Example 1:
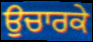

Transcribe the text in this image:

ਉਚਾਰਕੇ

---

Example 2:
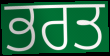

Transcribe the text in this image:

ਭਰਤ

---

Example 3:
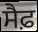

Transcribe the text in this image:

ਸੈਫ਼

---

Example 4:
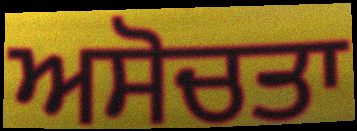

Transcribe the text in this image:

ਅਸੋਚਤਾ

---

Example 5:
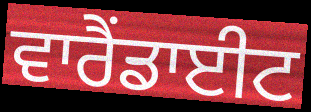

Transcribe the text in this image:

ਵਾਰੈਂਡਾਈਟ